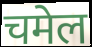
चमेल